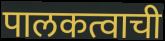
पालकत्वाची